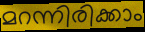
മറന്നിരിക്കാം